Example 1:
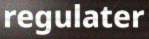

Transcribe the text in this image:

regulater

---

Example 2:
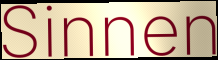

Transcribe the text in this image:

Sinnen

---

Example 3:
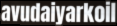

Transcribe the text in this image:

avudaiyarkoil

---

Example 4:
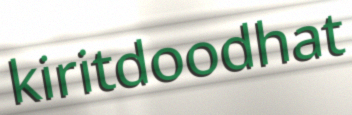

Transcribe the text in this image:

kiritdoodhat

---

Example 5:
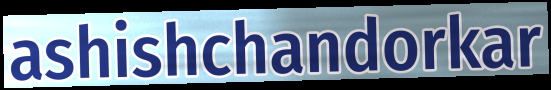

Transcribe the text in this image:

ashishchandorkar